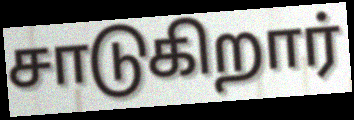
சாடுகிறார்